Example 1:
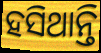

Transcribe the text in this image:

ହସିଥାନ୍ତି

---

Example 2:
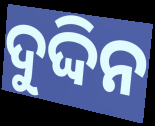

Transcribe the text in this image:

ଦୁଦ୍ଦିନ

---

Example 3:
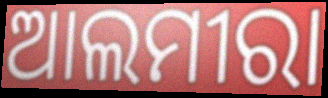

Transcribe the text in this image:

ଆଲମୀରା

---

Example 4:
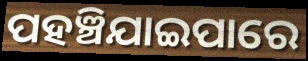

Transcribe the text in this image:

ପହଞ୍ଚିଯାଇପାରେ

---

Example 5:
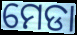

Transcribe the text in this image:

ମେଡା